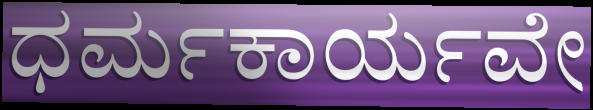
ಧರ್ಮಕಾರ್ಯವೇ